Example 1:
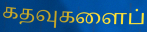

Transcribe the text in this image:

கதவுகளைப்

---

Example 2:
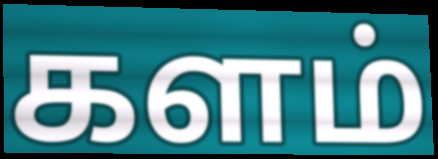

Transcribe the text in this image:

களம்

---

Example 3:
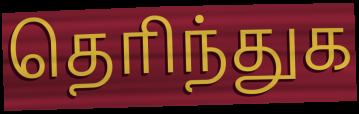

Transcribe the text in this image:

தெரிந்துக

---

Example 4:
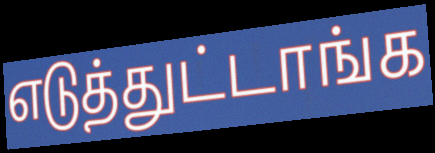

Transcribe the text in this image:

எடுத்துட்டாங்க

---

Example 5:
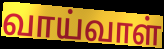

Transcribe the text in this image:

வாய்வாள்